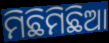
ମିଛିମିଛିଆ